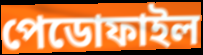
পেডোফাইল